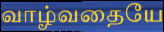
வாழ்வதையே